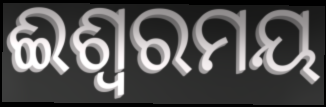
ଈଶ୍ଵରମୟ